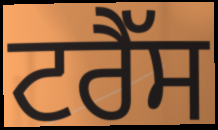
ਟਰੈੱਸ